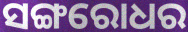
ସଙ୍ଗରୋଧର